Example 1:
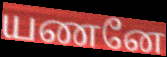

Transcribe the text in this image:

யணனே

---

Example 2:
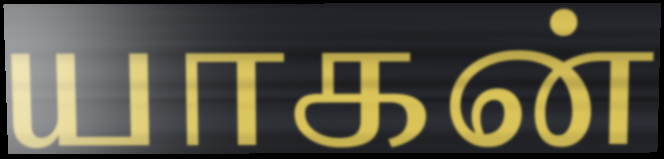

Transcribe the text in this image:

யாகன்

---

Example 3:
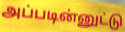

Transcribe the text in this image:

அப்படின்னுட்டு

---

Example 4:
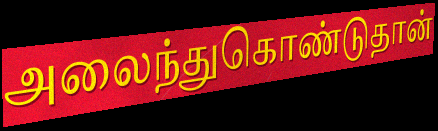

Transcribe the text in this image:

அலைந்துகொண்டுதான்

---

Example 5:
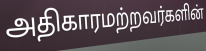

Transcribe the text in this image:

அதிகாரமற்றவர்களின்